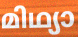
മിഥ്യാ